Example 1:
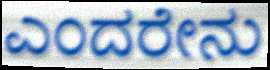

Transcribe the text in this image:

ಎಂದರೇನು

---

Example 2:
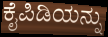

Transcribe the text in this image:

ಕೈಪಿಡಿಯನ್ನು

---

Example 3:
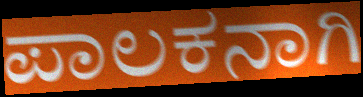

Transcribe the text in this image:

ಪಾಲಕನಾಗಿ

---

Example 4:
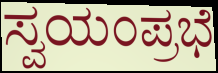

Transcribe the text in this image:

ಸ್ವಯಂಪ್ರಭೆ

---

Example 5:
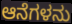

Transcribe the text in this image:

ಆನೆಗಳನು